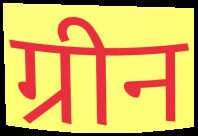
ग्रीन